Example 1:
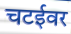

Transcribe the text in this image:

चटईवर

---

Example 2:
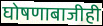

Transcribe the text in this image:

घोषणाबाजीही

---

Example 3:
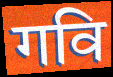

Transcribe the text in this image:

गवि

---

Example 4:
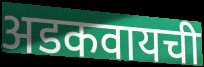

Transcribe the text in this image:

अडकवायची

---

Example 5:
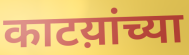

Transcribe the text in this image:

काटय़ांच्या